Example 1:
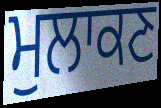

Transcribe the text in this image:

ਮੁਲਾਕਣ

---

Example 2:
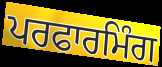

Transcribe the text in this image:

ਪਰਫਾਰਮਿੰਗ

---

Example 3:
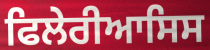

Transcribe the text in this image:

ਫਿਲੇਰੀਆਸਿਸ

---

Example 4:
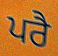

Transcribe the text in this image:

ਪਰੈ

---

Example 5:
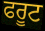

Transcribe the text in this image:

ਫਰੂਟ